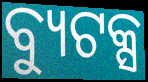
ବ୍ୟୁଟକ୍ସ